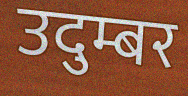
उदुम्बर